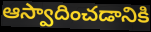
ఆస్వాదించడానికి